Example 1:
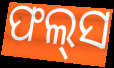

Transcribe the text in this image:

ଫଲ୍‍ସ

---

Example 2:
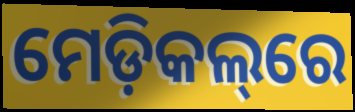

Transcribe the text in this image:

ମେଡ଼ିକଲ୍‌ରେ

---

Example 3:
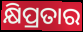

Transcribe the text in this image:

କ୍ଷିପ୍ରତାର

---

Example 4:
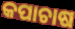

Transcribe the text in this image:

କପାଚାଷ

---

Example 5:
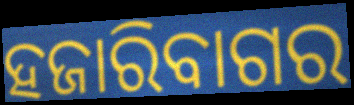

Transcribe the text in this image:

ହଜାରିବାଗର